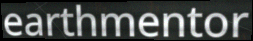
earthmentor